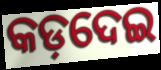
କଡ଼ଦେଇ